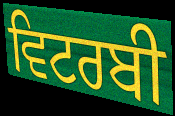
ਵਿਟਰਬੀ